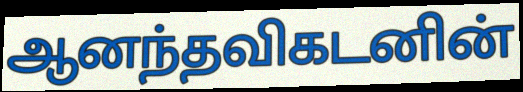
ஆனந்தவிகடனின்